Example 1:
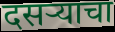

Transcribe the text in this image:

दसऱ्याचा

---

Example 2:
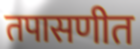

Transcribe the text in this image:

तपासणीत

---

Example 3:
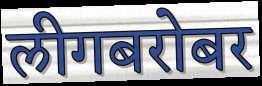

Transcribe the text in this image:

लीगबरोबर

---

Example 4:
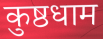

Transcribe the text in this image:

कुष्ठधाम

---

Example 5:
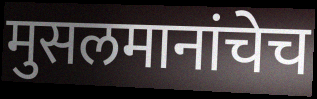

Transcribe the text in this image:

मुसलमानांचेच